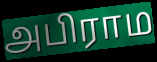
அபிராம